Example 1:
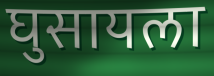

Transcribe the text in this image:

घुसायला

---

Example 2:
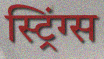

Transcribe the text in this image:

स्ट्रिंग्स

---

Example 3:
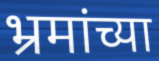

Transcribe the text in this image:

भ्रमांच्या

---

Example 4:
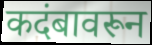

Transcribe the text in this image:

कदंबावरून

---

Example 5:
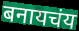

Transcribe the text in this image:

बनायचंय